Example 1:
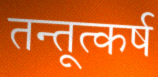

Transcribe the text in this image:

तन्तूत्कर्ष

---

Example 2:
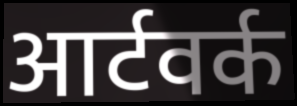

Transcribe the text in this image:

आर्टवर्क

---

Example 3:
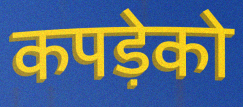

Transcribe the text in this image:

कपड़ेको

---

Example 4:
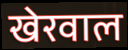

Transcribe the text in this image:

खेरवाल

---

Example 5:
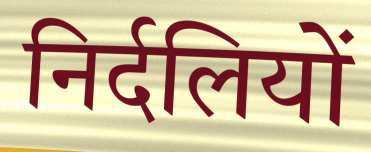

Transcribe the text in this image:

निर्दलियों